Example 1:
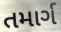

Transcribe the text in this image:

તમાર્ગ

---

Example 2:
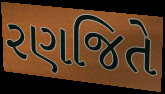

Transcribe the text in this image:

રણજિતે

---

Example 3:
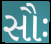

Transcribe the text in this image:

સૌઃ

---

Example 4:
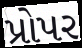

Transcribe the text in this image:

પ્રોપર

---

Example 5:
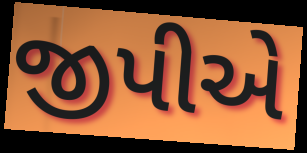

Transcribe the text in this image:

જીપીએ